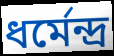
ধৰ্মেন্দ্ৰ